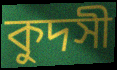
কুদসী